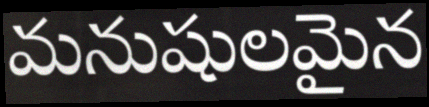
మనుషులమైన